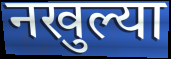
नखुल्या